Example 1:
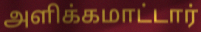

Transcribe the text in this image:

அளிக்கமாட்டார்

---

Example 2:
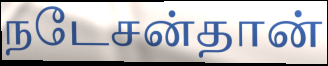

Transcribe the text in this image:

நடேசன்தான்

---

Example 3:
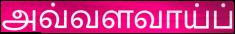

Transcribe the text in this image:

அவ்வளவாய்ப்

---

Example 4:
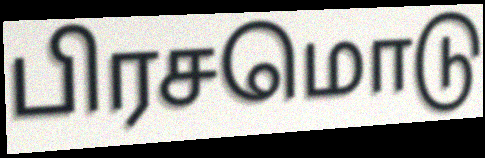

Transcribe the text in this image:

பிரசமொடு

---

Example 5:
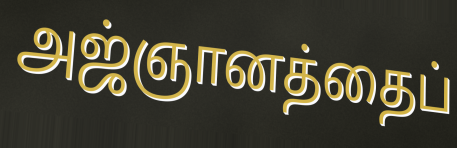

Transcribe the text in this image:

அஜ்ஞானத்தைப்